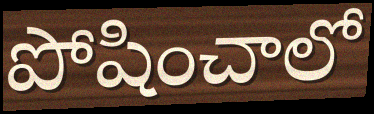
పోషించాలో